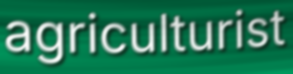
agriculturist